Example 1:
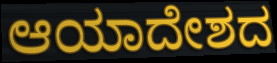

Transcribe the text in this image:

ಆಯಾದೇಶದ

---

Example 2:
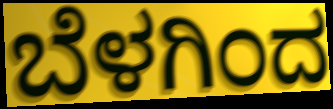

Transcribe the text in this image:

ಬೆಳಗಿಂದ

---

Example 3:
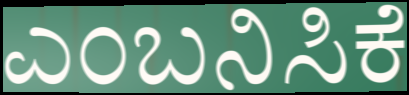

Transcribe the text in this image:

ಎಂಬನಿಸಿಕೆ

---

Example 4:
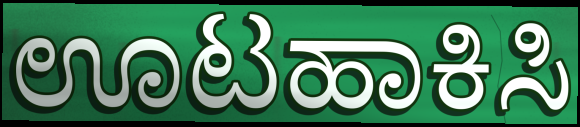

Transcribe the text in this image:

ಊಟಹಾಕಿಸಿ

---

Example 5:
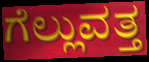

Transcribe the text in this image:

ಗೆಲ್ಲುವತ್ತ